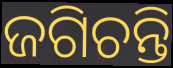
ଜଗିଚନ୍ତି